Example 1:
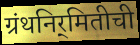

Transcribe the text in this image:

ग्रंथनिर्मितीची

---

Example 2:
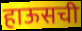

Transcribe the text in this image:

हाऊसची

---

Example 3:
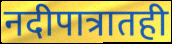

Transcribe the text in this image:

नदीपात्रातही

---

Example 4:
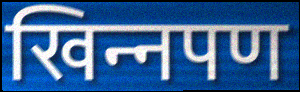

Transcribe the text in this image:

खिन्नपण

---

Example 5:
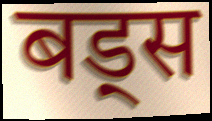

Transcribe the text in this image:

बड्स